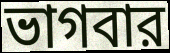
ভাগবার